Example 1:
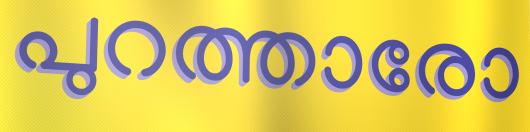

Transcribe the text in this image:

പുറത്താരോ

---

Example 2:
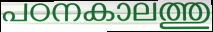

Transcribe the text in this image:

പഠനകാലത്തു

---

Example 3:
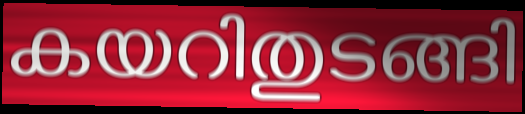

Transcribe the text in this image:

കയറിതുടങ്ങി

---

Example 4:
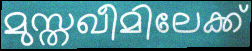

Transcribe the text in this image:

മുസ്തഖീമിലേക്ക്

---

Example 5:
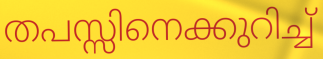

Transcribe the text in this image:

തപസ്സിനെക്കുറിച്ച്